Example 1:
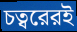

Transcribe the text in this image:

চত্বরেরই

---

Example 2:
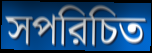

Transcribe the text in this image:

সপরিচিত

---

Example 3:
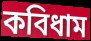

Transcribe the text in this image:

কবিধাম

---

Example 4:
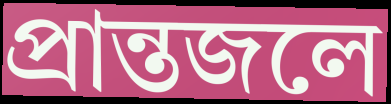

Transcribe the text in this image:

প্রান্তজলে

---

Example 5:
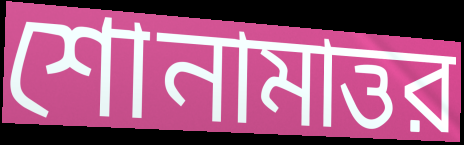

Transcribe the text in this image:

শোনামাত্তর